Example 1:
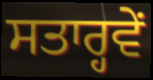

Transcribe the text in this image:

ਸਤਾਰ੍ਹਵੇਂ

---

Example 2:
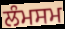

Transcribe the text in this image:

ਲੰਮਸਮ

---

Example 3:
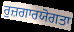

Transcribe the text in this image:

ਰੁਜ਼ਗਾਰਯੋਗਤਾ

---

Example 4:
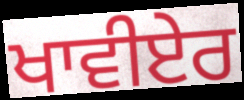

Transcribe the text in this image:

ਖਾਵੀਏਰ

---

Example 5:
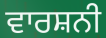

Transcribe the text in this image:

ਵਾਰਸ਼ਨੀ